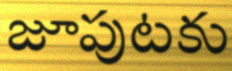
జూపుటకు